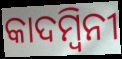
କାଦମ୍ୱିନୀ